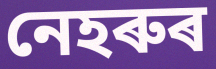
নেহৰুৰ